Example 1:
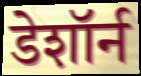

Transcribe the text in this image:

डेशॉर्न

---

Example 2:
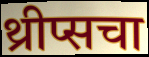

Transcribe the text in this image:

थ्रीप्सचा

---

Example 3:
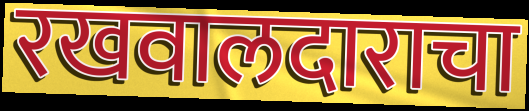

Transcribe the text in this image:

रखवालदाराचा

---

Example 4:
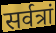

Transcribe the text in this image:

सर्वत्रां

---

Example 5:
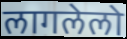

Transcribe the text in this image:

लागलेलो